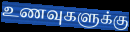
உணவுகளுக்கு